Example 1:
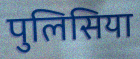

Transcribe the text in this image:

पुलिसिया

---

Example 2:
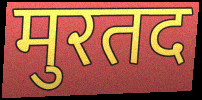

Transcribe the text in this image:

मुरतद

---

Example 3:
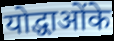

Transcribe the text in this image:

योद्धाओंके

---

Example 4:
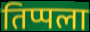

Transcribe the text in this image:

तिप्पला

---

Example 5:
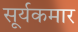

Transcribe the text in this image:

सूर्यकमार